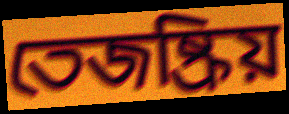
তেজষ্ক্রিয়